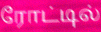
ரோட்டில்